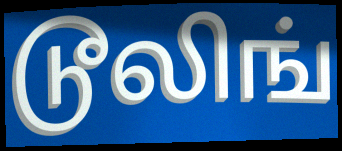
டூலிங்